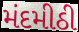
મંદમીઠી